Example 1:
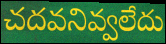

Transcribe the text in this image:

చదవనివ్వలేదు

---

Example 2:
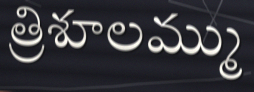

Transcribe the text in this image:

త్రిశూలమ్ము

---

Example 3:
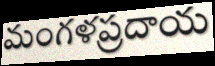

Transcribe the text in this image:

మంగళప్రదాయ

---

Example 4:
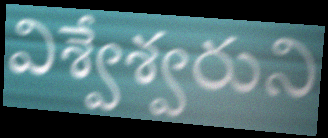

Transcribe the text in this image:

విశ్వేశ్వరుని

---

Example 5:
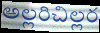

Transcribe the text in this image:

అల్లరిచిల్లర